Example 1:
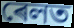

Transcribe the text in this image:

ৰেলত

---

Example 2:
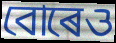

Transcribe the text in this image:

বোৰেও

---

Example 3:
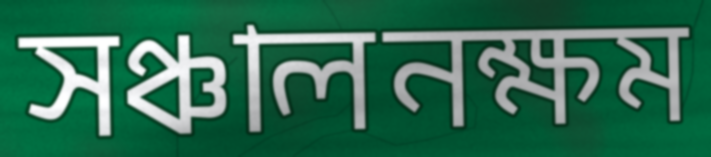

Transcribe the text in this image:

সঞ্চালনক্ষম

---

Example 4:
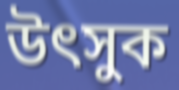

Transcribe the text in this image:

উৎসুক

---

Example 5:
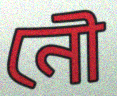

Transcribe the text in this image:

নৌ